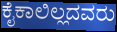
ಕೈಕಾಲಿಲ್ಲದವರು